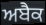
ਅਬੈਕ